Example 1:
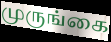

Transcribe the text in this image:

முருங்கை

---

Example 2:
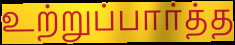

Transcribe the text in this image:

உற்றுப்பார்த்த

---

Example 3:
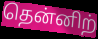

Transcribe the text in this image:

தென்னிற்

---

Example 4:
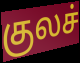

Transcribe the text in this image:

குலச்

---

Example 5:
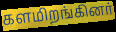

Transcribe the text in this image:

களமிறங்கினர்